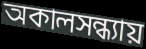
অকালসন্ধ্যায়